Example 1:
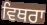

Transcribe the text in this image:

ਵਿਥਰਾ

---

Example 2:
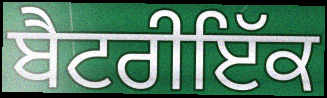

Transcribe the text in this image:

ਬੈਟਰੀਇੱਕ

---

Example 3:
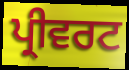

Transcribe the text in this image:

ਪ੍ਰੀਵਰਟ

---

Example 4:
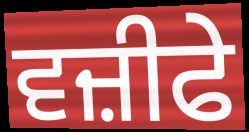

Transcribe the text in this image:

ਵਜ਼ੀਫੇ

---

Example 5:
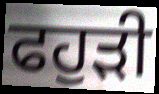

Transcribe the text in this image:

ਫਹੁੜੀ